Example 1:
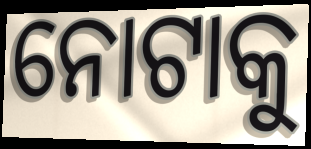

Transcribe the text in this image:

ନୋଟାକୁ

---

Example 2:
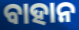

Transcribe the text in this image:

ବାହାନ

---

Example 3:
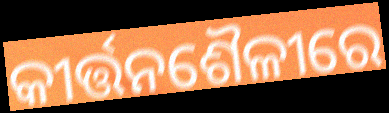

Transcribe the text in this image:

କୀର୍ତ୍ତନଶୈଳୀରେ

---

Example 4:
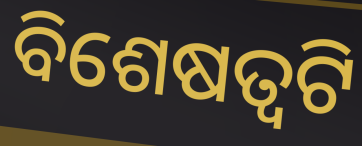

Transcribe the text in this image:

ବିଶେଷତ୍ୱଟି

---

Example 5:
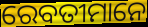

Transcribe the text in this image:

ରେବତୀମାନେ